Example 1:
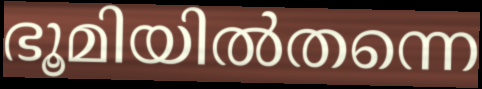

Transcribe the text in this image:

ഭൂമിയിൽതന്നെ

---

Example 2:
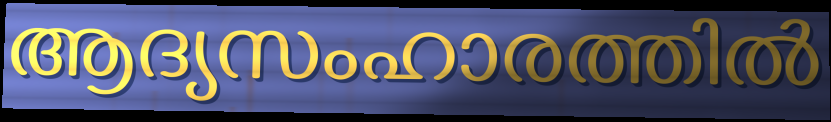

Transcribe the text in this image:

ആദ്യസംഹാരത്തിൽ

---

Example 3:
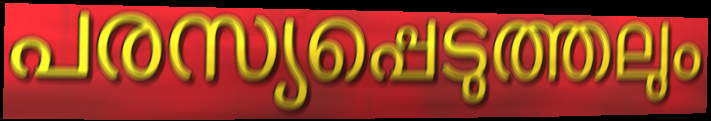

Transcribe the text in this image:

പരസ്യപ്പെടുത്തലും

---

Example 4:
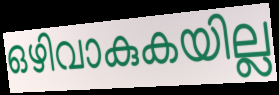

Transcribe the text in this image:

ഒഴിവാകുകയില്ല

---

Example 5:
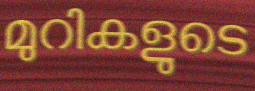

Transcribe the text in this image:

മുറികളുടെ